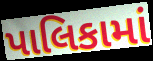
પાલિકામાં